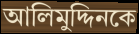
আলিমুদ্দিনকে